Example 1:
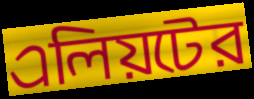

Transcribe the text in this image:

এলিয়টের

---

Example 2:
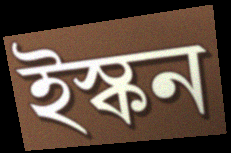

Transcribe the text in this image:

ইস্কন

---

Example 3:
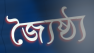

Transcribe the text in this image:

জ্যৈষ্ঠ্য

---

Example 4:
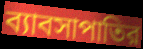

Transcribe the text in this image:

ব্যাবসাপাতির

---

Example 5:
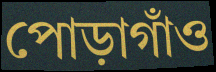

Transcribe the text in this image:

পোড়াগাঁও